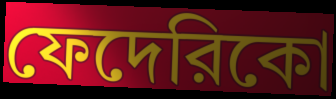
ফেদেরিকো